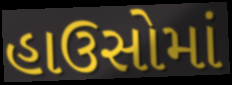
હાઉસોમાં